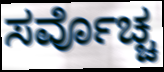
ಸರ್ವೊಚ್ಚ